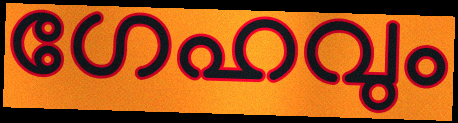
ഗേഹവും